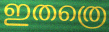
ഇതത്രെ